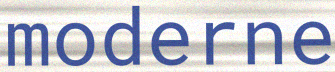
moderne